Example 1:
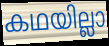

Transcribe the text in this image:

കഥയില്ലാ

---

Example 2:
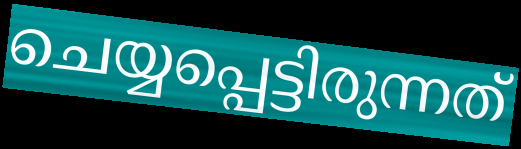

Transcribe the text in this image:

ചെയ്യപ്പെട്ടിരുന്നത്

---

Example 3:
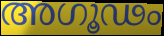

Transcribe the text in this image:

അഗൂഢം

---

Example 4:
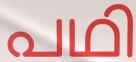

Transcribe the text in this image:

പഥി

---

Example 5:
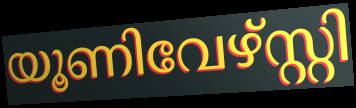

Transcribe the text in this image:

യൂണിവേഴ്സ്റ്റി